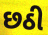
છઠી